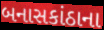
બનાસકાંઠાના